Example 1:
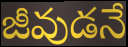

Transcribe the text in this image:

జీవుడనే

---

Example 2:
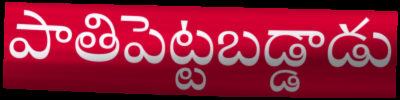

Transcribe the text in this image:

పాతిపెట్టబడ్డాడు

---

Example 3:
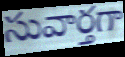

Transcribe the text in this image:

సువార్తగా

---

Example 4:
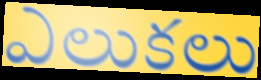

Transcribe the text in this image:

ఎలుకలు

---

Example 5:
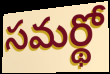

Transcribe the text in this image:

సమర్థో